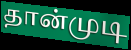
தான்முடி